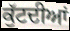
ਕੁੱਟਦੀਆਂ